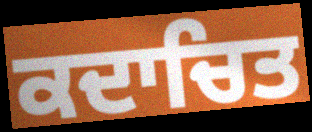
ਕਦਾਚਿਤ